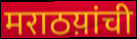
मराठय़ांची